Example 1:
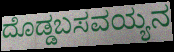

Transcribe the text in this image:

ದೊಡ್ಡಬಸವಯ್ಯನ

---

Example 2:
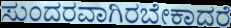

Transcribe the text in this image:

ಸುಂದರವಾಗಿರಬೇಕಾದರೆ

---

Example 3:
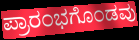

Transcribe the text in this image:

ಪ್ರಾರಂಭಗೊಂಡವು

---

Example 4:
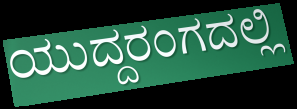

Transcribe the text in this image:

ಯುದ್ದರಂಗದಲ್ಲಿ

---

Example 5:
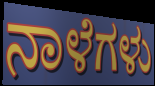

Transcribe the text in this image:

ನಾಳೆಗಳು